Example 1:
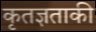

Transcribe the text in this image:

कृतज्ञताकी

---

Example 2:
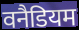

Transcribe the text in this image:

वनैडियम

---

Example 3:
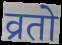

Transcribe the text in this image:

व्रतो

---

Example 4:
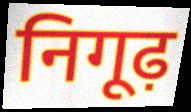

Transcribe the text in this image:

निगूढ़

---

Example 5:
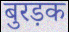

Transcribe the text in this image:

बुरड़क